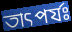
তাৎপর্যঃ